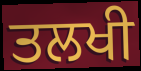
ਤਲਖੀ